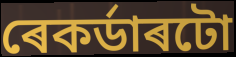
ৰেকৰ্ডাৰটো